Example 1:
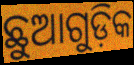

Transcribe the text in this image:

ଛୁଆଗୁଡ଼ିକ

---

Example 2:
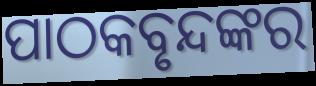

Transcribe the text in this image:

ପାଠକବୃନ୍ଦଙ୍କର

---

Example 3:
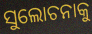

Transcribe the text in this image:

ସୁଲୋଚନାକୁ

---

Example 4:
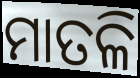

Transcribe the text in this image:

ମାତଳି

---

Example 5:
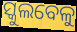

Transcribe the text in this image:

ସ୍କୁଲବେଳୁ